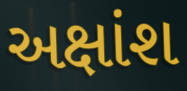
અક્ષાંશ